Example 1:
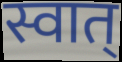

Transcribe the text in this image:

स्वात्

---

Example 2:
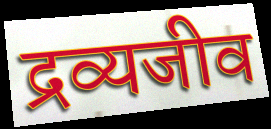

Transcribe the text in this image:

द्रव्यजीव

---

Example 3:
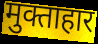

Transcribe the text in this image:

मुक्ताहार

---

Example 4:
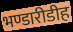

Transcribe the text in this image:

भण्डारीडीह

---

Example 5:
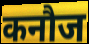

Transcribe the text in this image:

कनौज